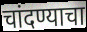
चांदण्याचा